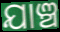
ଯାଞ୍ଚ